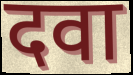
दवा